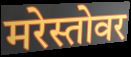
मरेस्तोवर